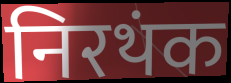
निरथंक